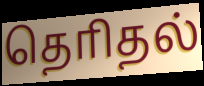
தெரிதல்